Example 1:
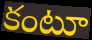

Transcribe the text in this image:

కంటూ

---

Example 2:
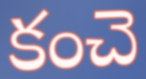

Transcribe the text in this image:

కంచె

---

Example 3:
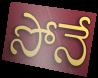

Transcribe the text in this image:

సోనే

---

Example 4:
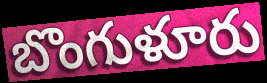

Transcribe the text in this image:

బొంగుళూరు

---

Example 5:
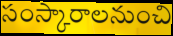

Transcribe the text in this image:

సంస్కారాలనుంచి